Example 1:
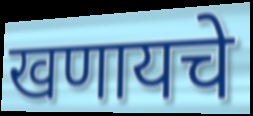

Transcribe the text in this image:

खणायचे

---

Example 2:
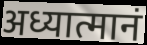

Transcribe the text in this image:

अध्यात्मानं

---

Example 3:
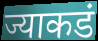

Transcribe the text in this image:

ज्याकडं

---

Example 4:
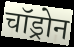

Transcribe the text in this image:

चॉड्रोन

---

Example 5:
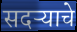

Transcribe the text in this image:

सदऱ्याचे